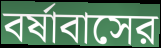
বর্ষাবাসের